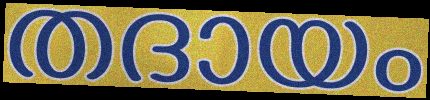
തദായം